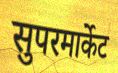
सुपरमार्केट